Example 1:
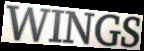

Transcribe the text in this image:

WINGS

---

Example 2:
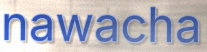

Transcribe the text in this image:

nawacha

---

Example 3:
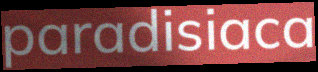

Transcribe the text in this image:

paradisiaca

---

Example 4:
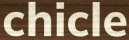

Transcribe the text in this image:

chicle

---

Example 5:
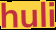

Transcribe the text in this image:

huli